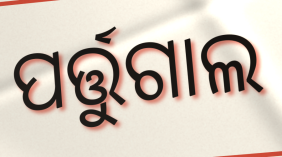
ପର୍ତ୍ତୁଗାଲ